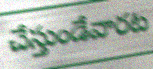
చేస్తుండేవారట